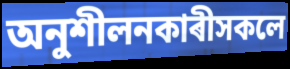
অনুশীলনকাৰীসকলে